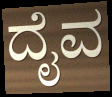
ದೈವ